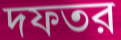
দফতর